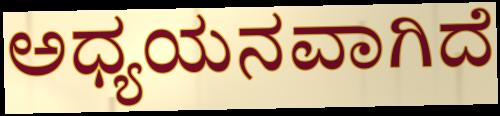
ಅಧ್ಯಯನವಾಗಿದೆ